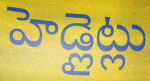
హెడ్లైట్లు